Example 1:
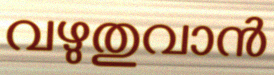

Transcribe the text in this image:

വഴുതുവാൻ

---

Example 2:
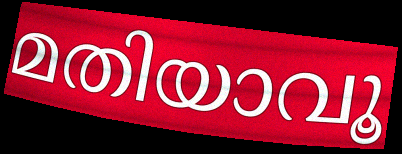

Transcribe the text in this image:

മതിയാവൂ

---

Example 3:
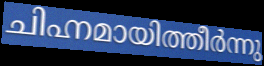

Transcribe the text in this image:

ചിഹ്നമായിത്തീർന്നു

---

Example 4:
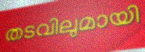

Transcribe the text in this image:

തടവിലുമായി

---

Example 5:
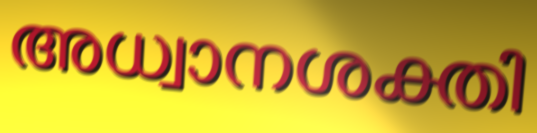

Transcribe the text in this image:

അധ്വാനശക്തി